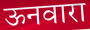
ऊनवारा